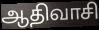
ஆதிவாசி